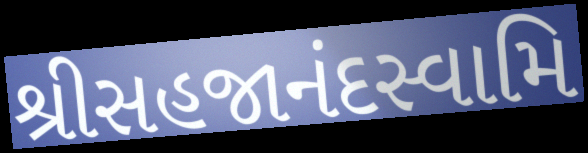
શ્રીસહજાનંદસ્વામિ